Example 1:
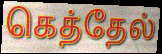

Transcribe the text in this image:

கெத்தேல்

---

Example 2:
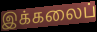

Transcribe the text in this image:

இக்கலைப்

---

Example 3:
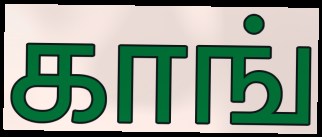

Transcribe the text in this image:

காங்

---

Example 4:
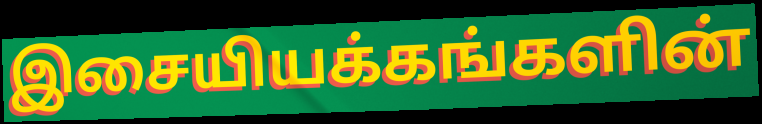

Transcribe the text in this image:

இசையியக்கங்களின்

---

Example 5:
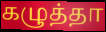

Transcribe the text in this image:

கழுத்தா